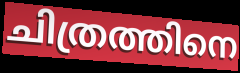
ചിത്രത്തിനെ